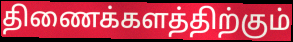
திணைக்களத்திற்கும்